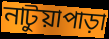
নাটুয়াপাড়া